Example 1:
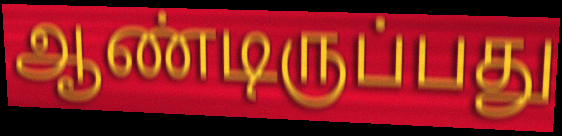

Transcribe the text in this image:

ஆண்டிருப்பது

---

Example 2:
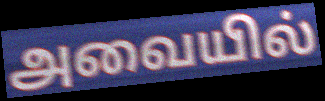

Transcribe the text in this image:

அவையில்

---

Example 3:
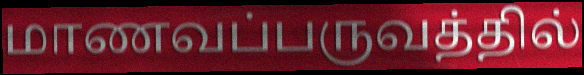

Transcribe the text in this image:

மாணவப்பருவத்தில்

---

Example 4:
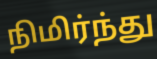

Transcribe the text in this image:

நிமிர்ந்து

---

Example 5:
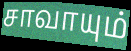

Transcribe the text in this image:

சாவாயும்